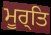
ਮੂਰ੍ਤਿ